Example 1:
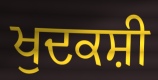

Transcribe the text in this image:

ਖੁਦਕਸ਼ੀ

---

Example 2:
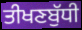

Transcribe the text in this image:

ਤੀਖਣਬੁੱਧੀ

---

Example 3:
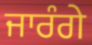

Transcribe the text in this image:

ਜਾਰੰਗੇ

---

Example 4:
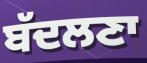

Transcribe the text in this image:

ਬੱਦਲਣਾ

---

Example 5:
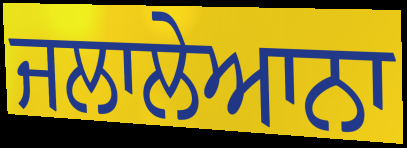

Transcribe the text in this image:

ਜਲਾਲੇਆਨਾ